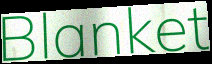
Blanket